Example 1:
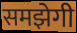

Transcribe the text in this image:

समझेगी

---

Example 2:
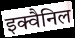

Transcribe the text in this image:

इक्वैनिल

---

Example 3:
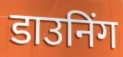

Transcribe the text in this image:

डाउनिंग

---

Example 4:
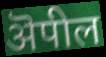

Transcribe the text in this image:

ऄपील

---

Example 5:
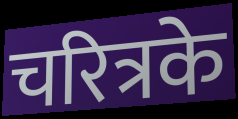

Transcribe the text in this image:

चरित्रके